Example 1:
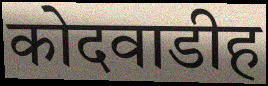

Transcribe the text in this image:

कोदवाडीह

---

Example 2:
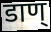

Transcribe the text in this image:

डाण्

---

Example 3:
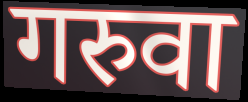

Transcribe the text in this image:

गरुवा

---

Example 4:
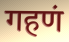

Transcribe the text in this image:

गहणं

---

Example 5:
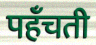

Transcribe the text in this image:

पहँचती